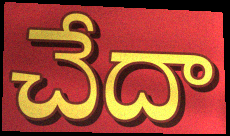
చేదా